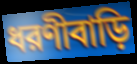
ধরণীবাড়ি